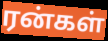
ரன்கள்